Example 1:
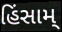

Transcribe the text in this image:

હિંસામ્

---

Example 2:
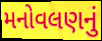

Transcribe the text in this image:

મનોવલણનું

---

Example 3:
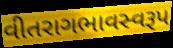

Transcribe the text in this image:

વીતરાગભાવસ્વરૂપ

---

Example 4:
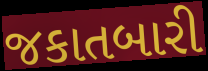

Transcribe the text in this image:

જકાતબારી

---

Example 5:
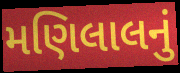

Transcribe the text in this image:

મણિલાલનું